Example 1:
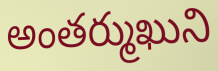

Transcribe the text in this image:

అంతర్ముఖుని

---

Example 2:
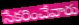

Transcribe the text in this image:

సేకరించేవారు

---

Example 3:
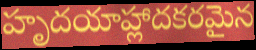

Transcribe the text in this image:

హృదయాహ్లాదకరమైన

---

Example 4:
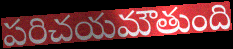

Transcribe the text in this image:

పరిచయమౌతుంది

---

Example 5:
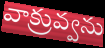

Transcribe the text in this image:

వాక్రువ్వను